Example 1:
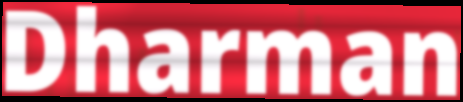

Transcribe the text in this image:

Dharman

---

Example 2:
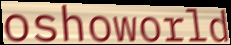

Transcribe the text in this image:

oshoworld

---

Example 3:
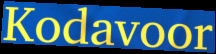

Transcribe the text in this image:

Kodavoor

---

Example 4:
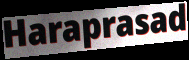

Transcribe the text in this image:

Haraprasad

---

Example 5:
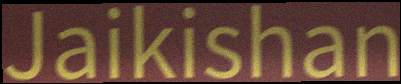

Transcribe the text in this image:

Jaikishan